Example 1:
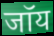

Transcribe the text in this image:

जॉय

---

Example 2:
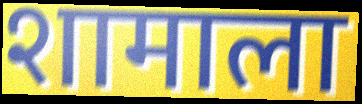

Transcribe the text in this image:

शामाला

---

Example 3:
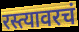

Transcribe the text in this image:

रस्त्यावरचं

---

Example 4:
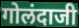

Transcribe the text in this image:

गोलंदाजी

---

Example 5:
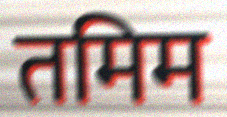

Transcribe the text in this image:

तमिम